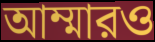
আম্মারও